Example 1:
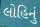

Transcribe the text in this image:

લોહિનું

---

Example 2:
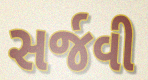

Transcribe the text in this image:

સર્જવી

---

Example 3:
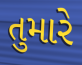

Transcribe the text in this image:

તુમારે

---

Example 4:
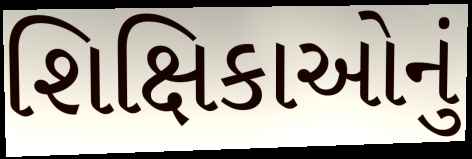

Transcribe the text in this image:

શિક્ષિકાઓનું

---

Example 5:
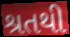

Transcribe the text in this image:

શ્રતથી